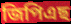
জিপিএছ